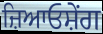
ਜ਼ਿਆਓਸ਼ੇਂਗ